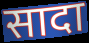
सादा